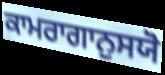
ਕਾਮਰਾਗਾਨੁਸਯੋ